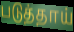
படுத்தாய்